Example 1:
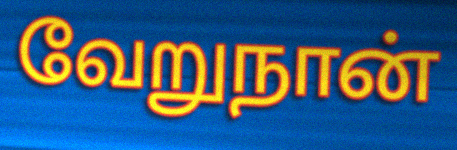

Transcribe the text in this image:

வேறுநான்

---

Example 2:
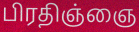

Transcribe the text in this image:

பிரதிஞ்ஞை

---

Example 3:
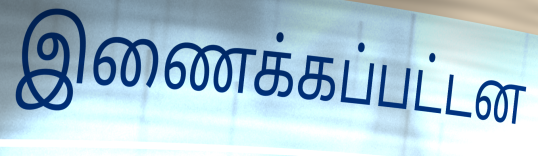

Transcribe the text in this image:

இணைக்கப்பட்டன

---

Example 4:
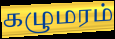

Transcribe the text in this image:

கழுமரம்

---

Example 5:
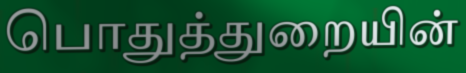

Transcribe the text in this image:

பொதுத்துறையின்